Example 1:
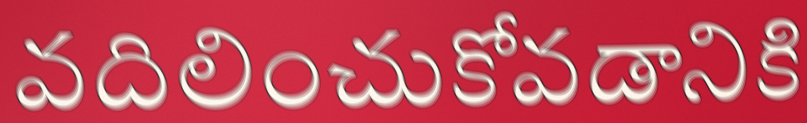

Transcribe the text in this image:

వదిలించుకోవడానికి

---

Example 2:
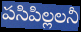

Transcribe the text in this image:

పసిపిల్లలనీ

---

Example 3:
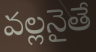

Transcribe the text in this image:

వల్లనైతే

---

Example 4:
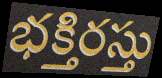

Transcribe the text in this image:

భక్తిరస్తు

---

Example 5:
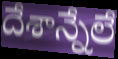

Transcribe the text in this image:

దేశాన్నేలే